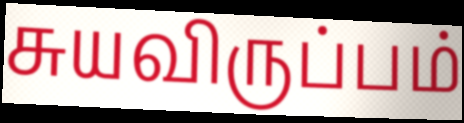
சுயவிருப்பம்